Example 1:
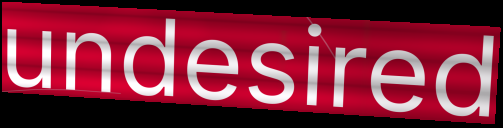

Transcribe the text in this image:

undesired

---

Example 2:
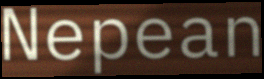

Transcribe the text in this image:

Nepean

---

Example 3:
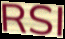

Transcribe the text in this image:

RSI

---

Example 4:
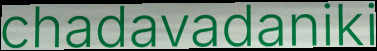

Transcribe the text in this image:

chadavadaniki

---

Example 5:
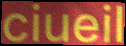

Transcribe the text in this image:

ciueil